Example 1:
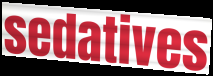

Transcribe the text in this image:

sedatives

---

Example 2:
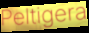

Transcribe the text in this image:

Peltigera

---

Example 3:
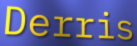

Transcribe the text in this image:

Derris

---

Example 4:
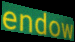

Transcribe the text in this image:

endow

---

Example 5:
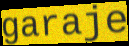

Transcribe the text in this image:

garaje